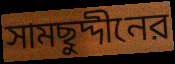
সামছুদ্দীনের